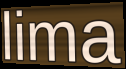
lima